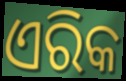
ଏରିକ